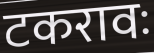
टकरावः